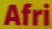
Afri